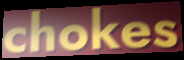
chokes